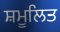
ਸ਼ਮੂਲਿਤ